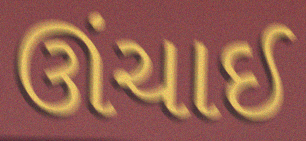
ઊંચાઈ